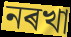
নৰখা